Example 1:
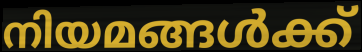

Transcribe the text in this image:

നിയമങ്ങൾക്ക്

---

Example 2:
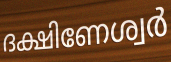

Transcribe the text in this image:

ദക്ഷിണേശ്വർ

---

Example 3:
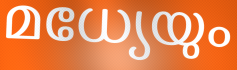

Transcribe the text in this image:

മധ്യേയും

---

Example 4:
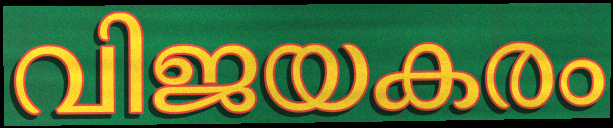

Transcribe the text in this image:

വിജയകരം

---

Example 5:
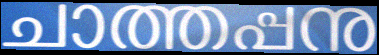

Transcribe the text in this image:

ചാത്തപ്പനു